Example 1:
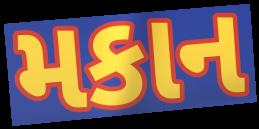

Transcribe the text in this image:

મકાન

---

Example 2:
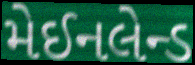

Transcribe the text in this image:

મેઈનલેન્ડ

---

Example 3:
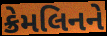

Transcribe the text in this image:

ક્રેમલિનને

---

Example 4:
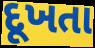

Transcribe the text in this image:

દૂખતા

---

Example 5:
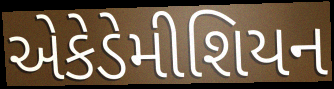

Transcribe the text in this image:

એકેડેમીશિયન